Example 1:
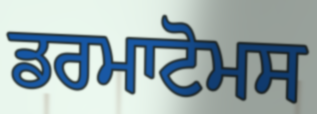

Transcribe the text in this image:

ਡਰਮਾਟੋਮਸ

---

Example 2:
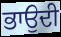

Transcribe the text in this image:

ਭਾਉਦੀ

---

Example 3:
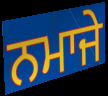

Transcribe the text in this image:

ਨਮਾਜੇ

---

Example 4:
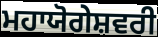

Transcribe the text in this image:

ਮਹਾਯੋਗੇਸ਼ਵਰੀ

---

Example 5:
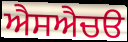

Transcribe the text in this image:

ਐਸਐਚੳ